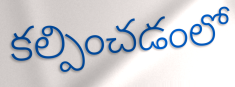
కల్పించడంలో